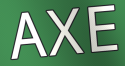
AXE